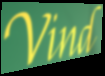
Vind